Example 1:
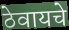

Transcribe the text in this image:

ठेवायचे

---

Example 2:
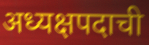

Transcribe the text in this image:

अध्यक्षपदाची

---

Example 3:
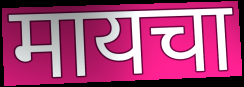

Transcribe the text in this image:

मायचा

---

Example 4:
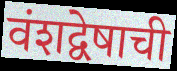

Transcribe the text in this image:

वंशद्वेषाची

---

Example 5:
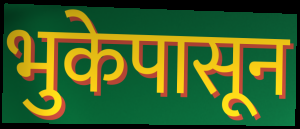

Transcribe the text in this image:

भुकेपासून